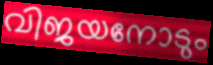
വിജയനോടും